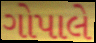
ગોપાલે